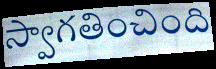
స్వాగతించింది